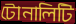
টোনালিটি